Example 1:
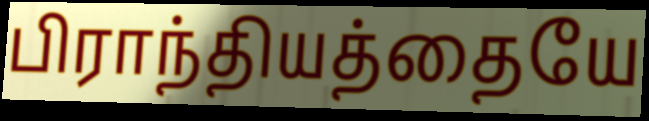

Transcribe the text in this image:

பிராந்தியத்தையே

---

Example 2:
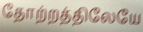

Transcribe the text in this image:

தோற்றத்திலேயே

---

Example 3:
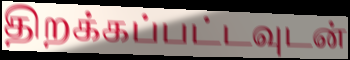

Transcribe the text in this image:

திறக்கப்பட்டவுடன்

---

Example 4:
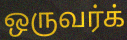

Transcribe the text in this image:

ஒருவர்க்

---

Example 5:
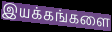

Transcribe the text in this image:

இயக்கங்களை